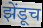
झेंडूच